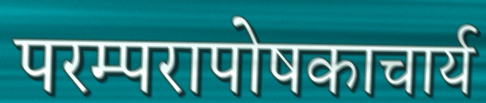
परम्परापोषकाचार्य